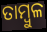
ତାମ୍ୱୁଳ